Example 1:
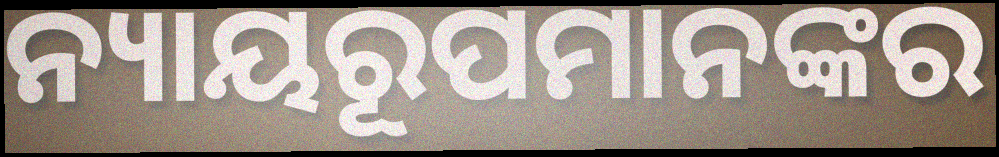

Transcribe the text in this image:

ନ୍ୟାୟରୂପମାନଙ୍କର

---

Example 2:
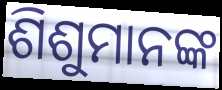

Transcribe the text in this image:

ଶିଶୁମାନଙ୍କ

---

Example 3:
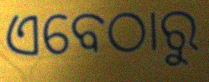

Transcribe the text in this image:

ଏବେଠାରୁ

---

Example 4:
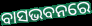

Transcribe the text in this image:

ବାସଭବନରେ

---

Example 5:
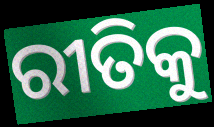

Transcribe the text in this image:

ରୀତିକୁ